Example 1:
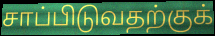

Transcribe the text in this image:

சாப்பிடுவதற்குக்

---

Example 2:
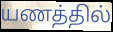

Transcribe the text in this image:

யணத்தில்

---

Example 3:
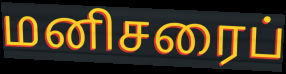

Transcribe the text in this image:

மனிசரைப்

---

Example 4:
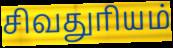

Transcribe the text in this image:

சிவதுரியம்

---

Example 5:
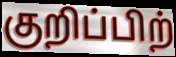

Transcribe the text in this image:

குறிப்பிற்